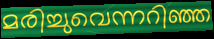
മരിച്ചുവെന്നറിഞ്ഞ